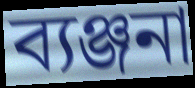
ব্যঞ্জনা